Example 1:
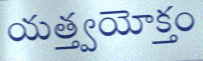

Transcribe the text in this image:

యత్త్వయోక్తం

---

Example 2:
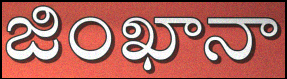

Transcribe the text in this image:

జింఖానా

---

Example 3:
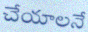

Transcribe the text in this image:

చేయాలనే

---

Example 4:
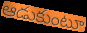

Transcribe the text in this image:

ఆడుకుంటూ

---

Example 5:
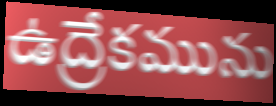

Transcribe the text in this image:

ఉద్రేకమును